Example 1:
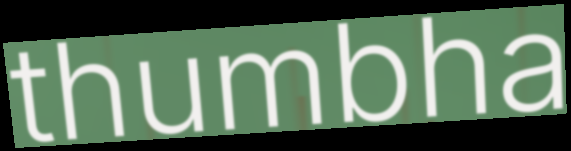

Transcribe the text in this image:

thumbha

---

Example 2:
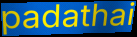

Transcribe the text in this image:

padathai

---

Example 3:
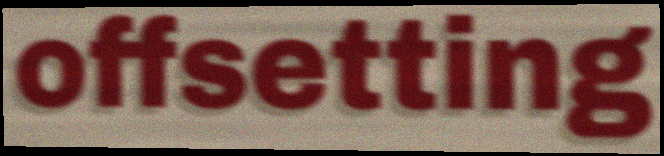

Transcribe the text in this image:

offsetting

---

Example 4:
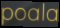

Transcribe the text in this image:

poala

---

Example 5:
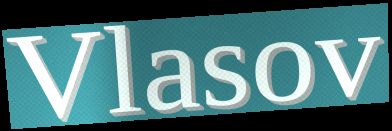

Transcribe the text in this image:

Vlasov